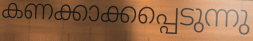
കണക്കാക്കപ്പെടുന്നു